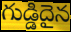
గుడ్డిదైన